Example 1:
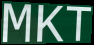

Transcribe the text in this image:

MKT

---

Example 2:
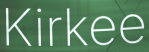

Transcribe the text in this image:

Kirkee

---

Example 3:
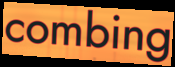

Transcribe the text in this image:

combing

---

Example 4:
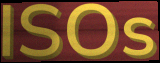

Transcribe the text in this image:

ISOs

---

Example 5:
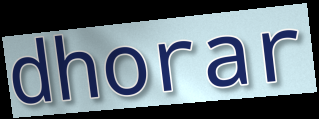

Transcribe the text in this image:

dhorar